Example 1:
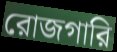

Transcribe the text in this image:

রোজগারি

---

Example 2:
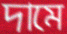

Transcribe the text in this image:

দামে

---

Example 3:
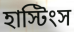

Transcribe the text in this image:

হাস্টিংস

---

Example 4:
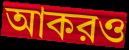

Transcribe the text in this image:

আকরও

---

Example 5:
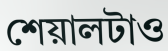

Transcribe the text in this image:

শেয়ালটাও